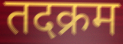
तदक्रम